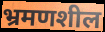
भ्रमणशील